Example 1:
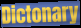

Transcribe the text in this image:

Dictonary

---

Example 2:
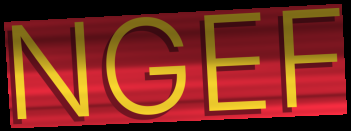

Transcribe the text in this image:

NGEF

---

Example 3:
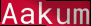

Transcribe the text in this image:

Aakum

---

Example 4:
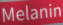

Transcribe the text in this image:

Melanin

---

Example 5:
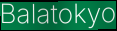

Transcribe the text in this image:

Balatokyo